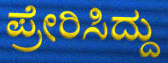
ಪ್ರೇರಿಸಿದ್ದು